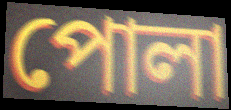
পোলা